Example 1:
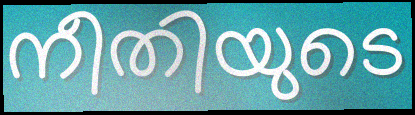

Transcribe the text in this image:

നീതിയുടെ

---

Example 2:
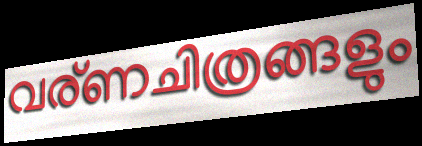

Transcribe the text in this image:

വര്ണചിത്രങ്ങളും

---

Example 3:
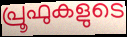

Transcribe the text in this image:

പ്രൂഫുകളുടെ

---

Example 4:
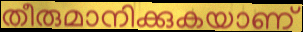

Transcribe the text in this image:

തീരുമാനിക്കുകയാണ്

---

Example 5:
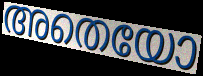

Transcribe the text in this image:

അതെയോ